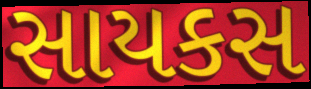
સાયકસ